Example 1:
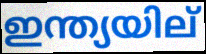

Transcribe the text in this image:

ഇന്ത്യയില്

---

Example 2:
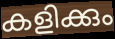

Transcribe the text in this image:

കളിക്കും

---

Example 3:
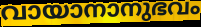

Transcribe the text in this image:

വായാനാനുഭവം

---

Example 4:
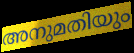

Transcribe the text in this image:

അനുമതിയും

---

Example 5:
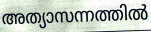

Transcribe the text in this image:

അത്യാസന്നത്തിൽ